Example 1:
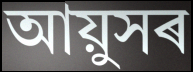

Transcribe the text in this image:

আয়ুসৰ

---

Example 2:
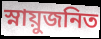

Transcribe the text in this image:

স্নায়ুজনিত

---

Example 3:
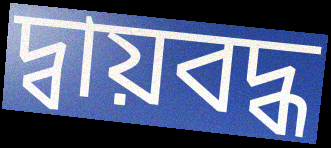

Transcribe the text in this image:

দ্বায়বদ্ধ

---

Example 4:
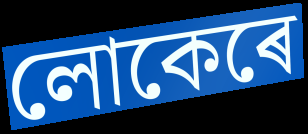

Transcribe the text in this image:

লোকেৰে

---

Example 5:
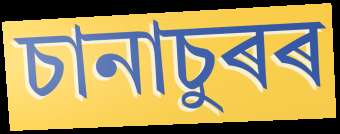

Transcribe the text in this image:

চানাচুৰৰ